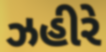
ઝહીરે